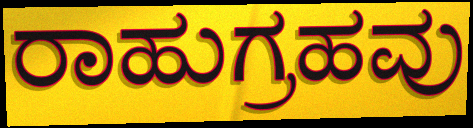
ರಾಹುಗ್ರಹವು